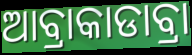
ଆବ୍ରାକାଡାବ୍ରା